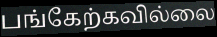
பங்கேற்கவில்லை